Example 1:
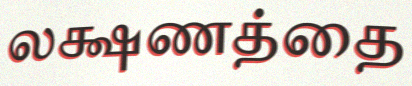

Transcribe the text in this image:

லக்ஷணத்தை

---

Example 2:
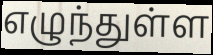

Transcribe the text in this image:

எழுந்துள்ள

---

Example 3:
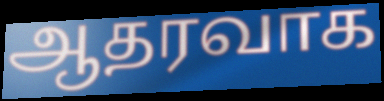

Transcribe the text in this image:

ஆதரவாக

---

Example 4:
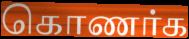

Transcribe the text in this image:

கொணர்க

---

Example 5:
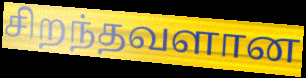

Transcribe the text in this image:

சிறந்தவளான